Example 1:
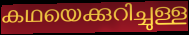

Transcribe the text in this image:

കഥയെക്കുറിച്ചുള്ള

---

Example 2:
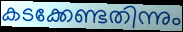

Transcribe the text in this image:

കടക്കേണ്ടതിന്നും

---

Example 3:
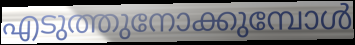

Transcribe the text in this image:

എടുത്തുനോക്കുമ്പോൾ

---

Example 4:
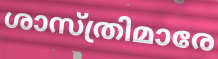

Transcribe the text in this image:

ശാസ്ത്രിമാരേ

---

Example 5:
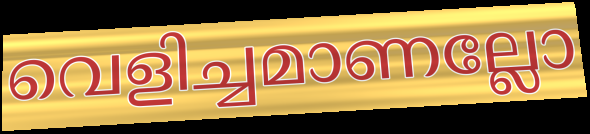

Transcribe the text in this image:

വെളിച്ചമാണല്ലോ